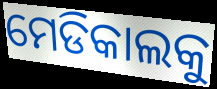
ମେଡିକାଲକୁ